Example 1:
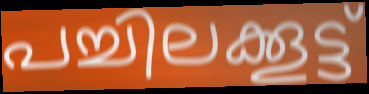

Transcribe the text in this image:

പച്ചിലക്കൂട്ട്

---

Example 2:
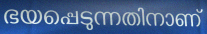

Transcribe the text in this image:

ഭയപ്പെടുന്നതിനാണ്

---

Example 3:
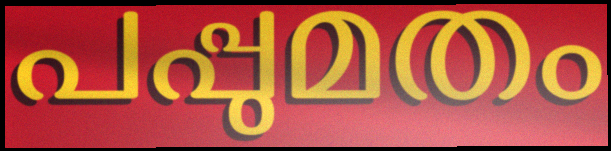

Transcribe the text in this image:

പപ്പുമതം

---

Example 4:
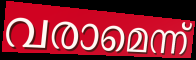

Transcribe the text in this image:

വരാമെന്ന്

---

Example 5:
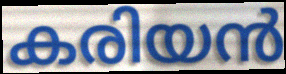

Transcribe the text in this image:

കരിയൻ